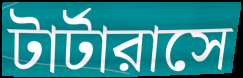
টার্টারাসে